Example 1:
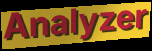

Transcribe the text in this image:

Analyzer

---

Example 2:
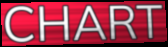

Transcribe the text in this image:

CHART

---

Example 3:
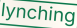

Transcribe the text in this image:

lynching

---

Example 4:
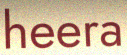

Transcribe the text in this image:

heera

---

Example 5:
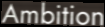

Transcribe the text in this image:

Ambition